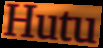
Hutu